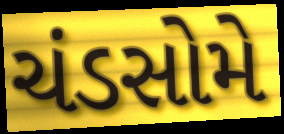
ચંડસોમે